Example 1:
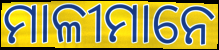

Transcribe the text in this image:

ମାଳୀମାନେ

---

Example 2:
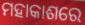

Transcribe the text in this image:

ମହାକାଶରେ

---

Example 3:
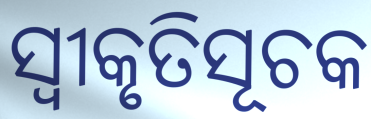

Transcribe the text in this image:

ସ୍ଵୀକୃତିସୂଚକ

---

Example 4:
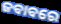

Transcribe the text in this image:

ଜବାବରେ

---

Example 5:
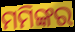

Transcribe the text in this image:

ମମିଙ୍କର